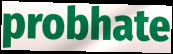
probhate